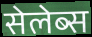
सेलेब्स